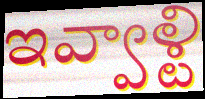
ఇవ్వాళ్టి